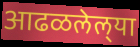
आढळलेल्या